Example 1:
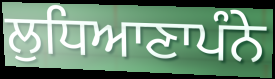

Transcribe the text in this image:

ਲੁਧਿਆਣਾਪੰਨੇ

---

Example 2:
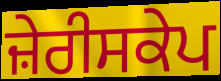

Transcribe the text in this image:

ਜ਼ੇਰੀਸਕੇਪ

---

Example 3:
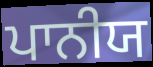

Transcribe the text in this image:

ਪਾਨੀਯ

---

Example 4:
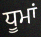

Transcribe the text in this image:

ਧੂਮਾਂ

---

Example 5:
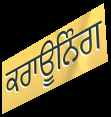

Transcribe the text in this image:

ਕਰਾਊਨਿੰਗ